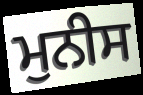
ਮੁਨੀਸ